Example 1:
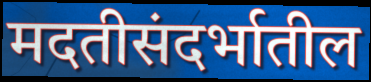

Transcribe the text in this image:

मदतीसंदर्भातील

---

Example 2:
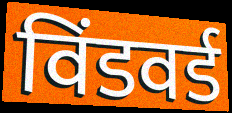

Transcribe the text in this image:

विंडवर्ड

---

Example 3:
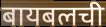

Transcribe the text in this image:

बायबलची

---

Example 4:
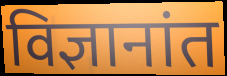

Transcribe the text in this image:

विज्ञानांत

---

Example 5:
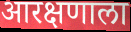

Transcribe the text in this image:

आरक्षणाला